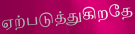
ஏற்படுத்துகிறதே